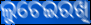
ଲୁଚେଇରଖି